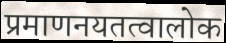
प्रमाणनयतत्वालोक